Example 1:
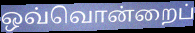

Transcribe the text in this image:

ஒவ்வொன்றைப்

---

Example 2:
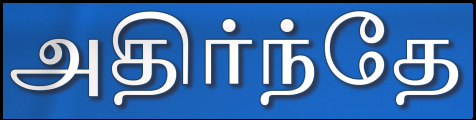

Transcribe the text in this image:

அதிர்ந்தே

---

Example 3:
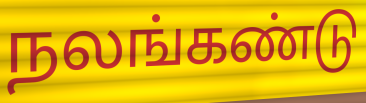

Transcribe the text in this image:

நலங்கண்டு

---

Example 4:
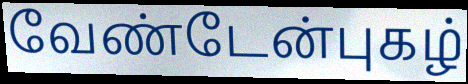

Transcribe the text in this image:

வேண்டேன்புகழ்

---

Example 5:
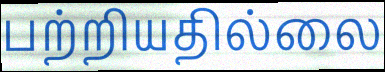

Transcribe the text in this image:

பற்றியதில்லை